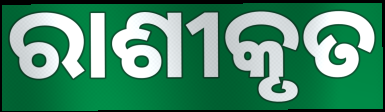
ରାଶୀକୃତ